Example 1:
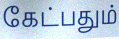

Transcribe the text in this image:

கேட்பதும்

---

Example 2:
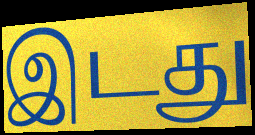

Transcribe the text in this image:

இடது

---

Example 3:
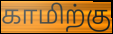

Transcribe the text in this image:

காமிற்கு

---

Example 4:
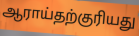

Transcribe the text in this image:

ஆராய்தற்குரியது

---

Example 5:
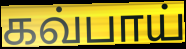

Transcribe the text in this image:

கவ்பாய்